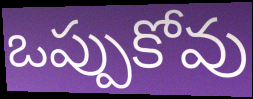
ఒప్పుకోవు